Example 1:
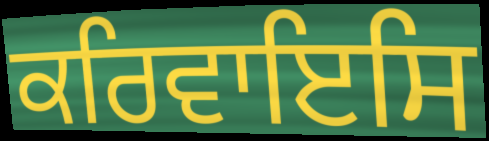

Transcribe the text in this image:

ਕਰਿਵਾਇਸਿ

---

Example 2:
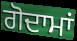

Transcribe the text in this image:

ਗੋਦਾਮਾਂ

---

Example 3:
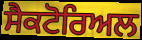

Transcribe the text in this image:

ਸੈਕਟੋਰਿਅਲ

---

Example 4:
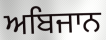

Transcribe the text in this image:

ਅਬਿਜਾਨ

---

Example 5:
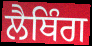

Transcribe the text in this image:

ਲੈਥਿੰਗ